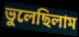
ভুলেছিলাম